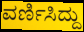
ವರ್ಣಿಸಿದ್ದು